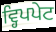
ਵ੍ਹਿਪਪੇਟ